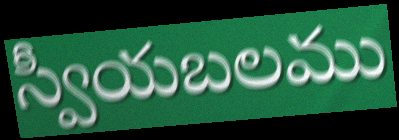
స్వీయబలము